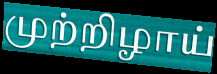
முற்றிழாய்